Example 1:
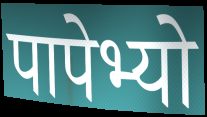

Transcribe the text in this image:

पापेभ्यो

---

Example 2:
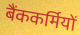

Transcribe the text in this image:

बैंककर्मियों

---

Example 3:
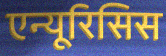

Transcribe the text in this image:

एन्यूरिसिस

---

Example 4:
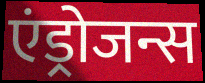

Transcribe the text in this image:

एंड्रोजन्स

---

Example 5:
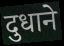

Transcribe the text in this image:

दुधाने